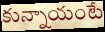
కున్నాయంటే